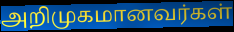
அறிமுகமானவர்கள்